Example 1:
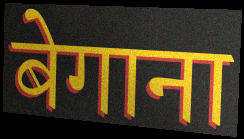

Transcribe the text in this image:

बेगाना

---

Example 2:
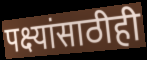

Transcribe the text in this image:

पक्ष्यांसाठीही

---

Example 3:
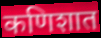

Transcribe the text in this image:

कणिशात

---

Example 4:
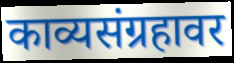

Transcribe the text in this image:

काव्यसंग्रहावर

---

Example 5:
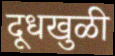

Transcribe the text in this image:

दूधखुळी